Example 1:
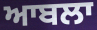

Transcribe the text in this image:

ਆਬਲਾ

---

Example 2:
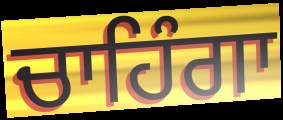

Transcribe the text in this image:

ਚਾਹਿੰਗਾ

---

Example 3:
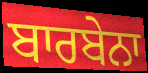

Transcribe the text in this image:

ਬਾਰਬੇਨਾ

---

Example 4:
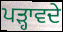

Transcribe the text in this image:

ਪੜ੍ਹਾਵਦੇ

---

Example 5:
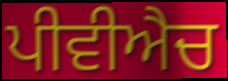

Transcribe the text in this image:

ਪੀਵੀਐਚ